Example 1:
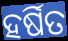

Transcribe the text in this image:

ହର୍ଷିତ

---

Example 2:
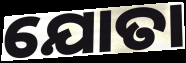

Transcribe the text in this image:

ଯୋତା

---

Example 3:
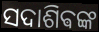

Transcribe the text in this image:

ସଦାଶିଵଙ୍କ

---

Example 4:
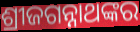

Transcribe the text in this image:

ଶ୍ରୀଜଗନ୍ନାଥଙ୍କର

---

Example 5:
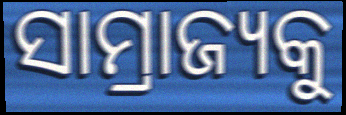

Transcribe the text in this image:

ସାମ୍ରାଜ୍ୟକୁ